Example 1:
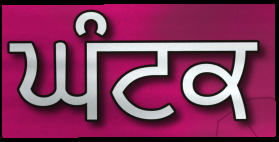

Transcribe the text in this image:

ਘੰਟਕ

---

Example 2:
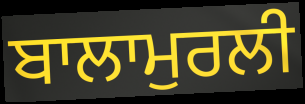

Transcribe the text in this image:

ਬਾਲਾਮੁਰਲੀ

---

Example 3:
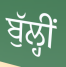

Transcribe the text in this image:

ਬੁੱਲ੍ਹੀਂ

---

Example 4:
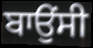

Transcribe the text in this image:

ਬਾਉਂਸੀ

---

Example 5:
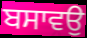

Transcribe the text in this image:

ਬਸਾਵਉ